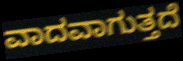
ವಾದವಾಗುತ್ತದೆ